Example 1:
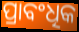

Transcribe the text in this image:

ପ୍ରାବଂଧିକ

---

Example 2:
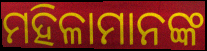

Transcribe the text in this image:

ମହିଳାମାନଙ୍କ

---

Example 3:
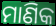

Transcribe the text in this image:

ମାଣିକ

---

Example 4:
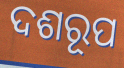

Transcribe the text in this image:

ଦଶରୂପ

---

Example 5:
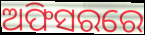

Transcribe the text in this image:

ଅଫିସରରେ